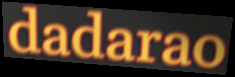
dadarao